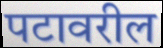
पटावरील